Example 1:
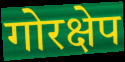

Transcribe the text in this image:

गोरक्षेप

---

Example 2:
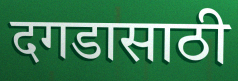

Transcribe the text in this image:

दगडासाठी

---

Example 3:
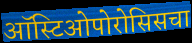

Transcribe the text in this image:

ऑस्टिओपोरोसिसचा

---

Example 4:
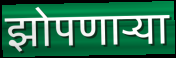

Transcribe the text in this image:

झोपणार्‍या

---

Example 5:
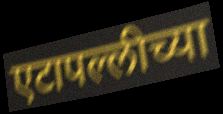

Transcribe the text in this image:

एटापल्लीच्या